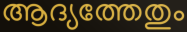
ആദ്യത്തേതും